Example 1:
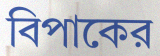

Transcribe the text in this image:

বিপাকের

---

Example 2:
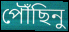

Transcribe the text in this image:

পৌঁছিনু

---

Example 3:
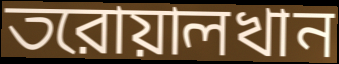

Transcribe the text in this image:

তরোয়ালখান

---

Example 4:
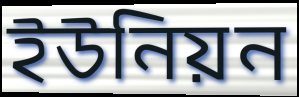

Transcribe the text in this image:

ইউনিয়ন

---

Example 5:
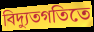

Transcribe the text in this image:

বিদ্যুতগতিতে